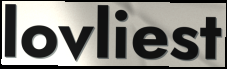
lovliest